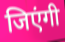
जिएंगी